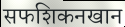
सफशिकनखान